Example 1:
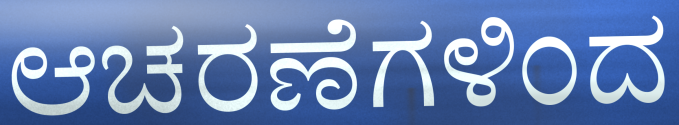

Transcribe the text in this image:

ಆಚರಣೆಗಳಿಂದ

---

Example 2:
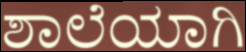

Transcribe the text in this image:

ಶಾಲೆಯಾಗಿ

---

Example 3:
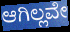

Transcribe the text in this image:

ಆಗಿಲ್ಲವೇ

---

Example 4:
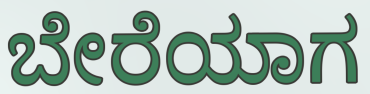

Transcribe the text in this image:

ಬೇರೆಯಾಗ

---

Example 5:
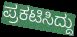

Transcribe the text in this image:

ಪ್ರಕಟಿಸಿದ್ದು